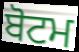
ਬੋਟਮ